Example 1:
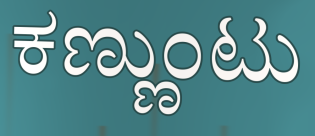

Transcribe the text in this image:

ಕಣ್ಣುಂಟು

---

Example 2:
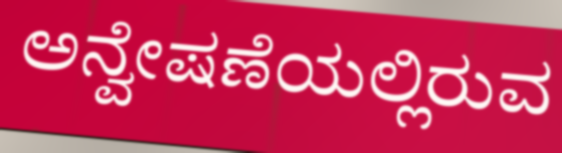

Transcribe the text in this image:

ಅನ್ವೇಷಣೆಯಲ್ಲಿರುವ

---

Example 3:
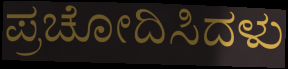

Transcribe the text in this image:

ಪ್ರಚೋದಿಸಿದಳು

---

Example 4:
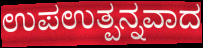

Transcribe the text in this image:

ಉಪಉತ್ಪನ್ನವಾದ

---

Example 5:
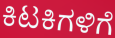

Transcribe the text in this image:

ಕಿಟಕಿಗಳಿಗೆ